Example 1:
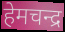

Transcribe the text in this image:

हेमचन्द्र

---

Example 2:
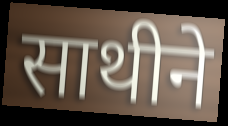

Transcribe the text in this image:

साथीने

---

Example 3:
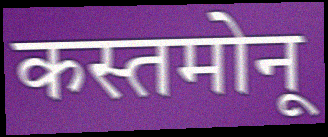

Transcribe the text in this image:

कस्तमोनू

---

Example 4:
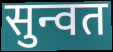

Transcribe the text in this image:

सुन्वत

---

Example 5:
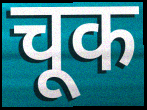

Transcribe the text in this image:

चूक